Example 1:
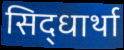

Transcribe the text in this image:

सिद्धार्था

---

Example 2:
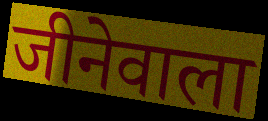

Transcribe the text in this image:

जीनेवाला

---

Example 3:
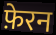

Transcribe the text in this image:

फ़ेरन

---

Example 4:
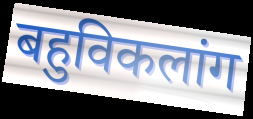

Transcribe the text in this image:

बहुविकलांग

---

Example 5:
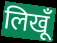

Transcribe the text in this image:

लिखूँ